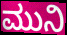
ಮುನಿ